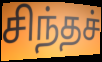
சிந்தச்